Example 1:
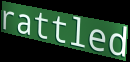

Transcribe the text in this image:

rattled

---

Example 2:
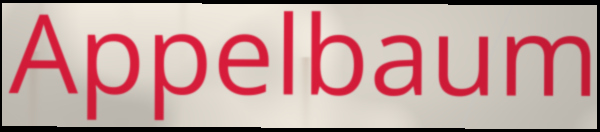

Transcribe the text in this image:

Appelbaum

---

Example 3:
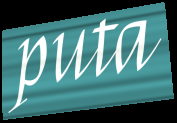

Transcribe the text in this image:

puta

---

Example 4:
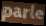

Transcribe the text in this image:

parle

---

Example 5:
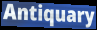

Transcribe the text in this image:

Antiquary